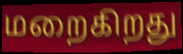
மறைகிறது